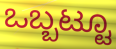
ಒಬ್ಬಟ್ಟೂ